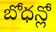
బోధన్లో